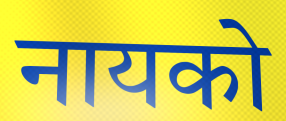
नायको